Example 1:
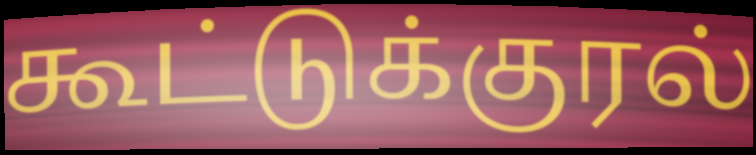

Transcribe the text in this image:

கூட்டுக்குரல்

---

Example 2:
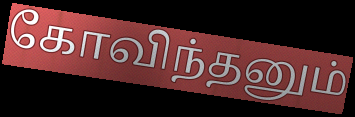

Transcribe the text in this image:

கோவிந்தனும்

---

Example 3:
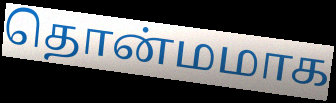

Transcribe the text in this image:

தொன்மமாக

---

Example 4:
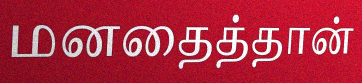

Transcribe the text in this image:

மனதைத்தான்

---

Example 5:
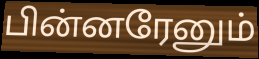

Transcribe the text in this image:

பின்னரேனும்